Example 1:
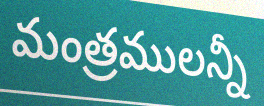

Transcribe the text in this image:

మంత్రములన్నీ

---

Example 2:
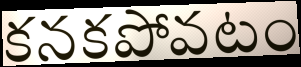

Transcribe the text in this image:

కనకపోవటం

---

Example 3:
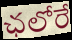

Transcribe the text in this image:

ఛలోరే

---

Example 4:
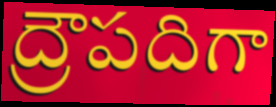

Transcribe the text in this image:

ద్రౌపదిగా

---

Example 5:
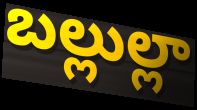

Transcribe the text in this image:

బల్లుల్లా